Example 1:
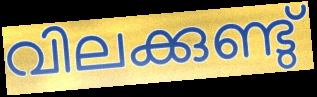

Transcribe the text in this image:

വിലക്കുണ്ടു്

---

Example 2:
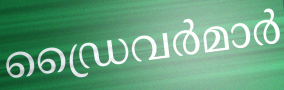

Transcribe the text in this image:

ഡ്രൈവർമാർ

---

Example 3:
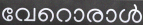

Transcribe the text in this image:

വേറൊരാൾ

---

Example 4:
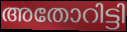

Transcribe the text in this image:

അതോറിട്ടി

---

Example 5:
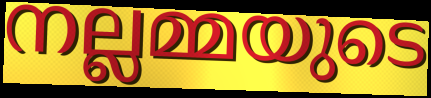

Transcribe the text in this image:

നല്ലമ്മയുടെ